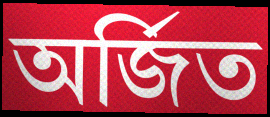
অর্জিত